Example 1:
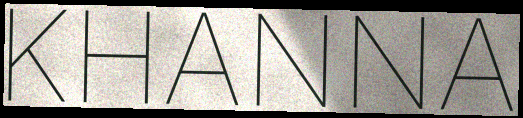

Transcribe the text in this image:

KHANNA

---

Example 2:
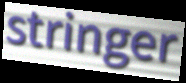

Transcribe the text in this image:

stringer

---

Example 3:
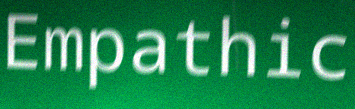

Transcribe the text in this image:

Empathic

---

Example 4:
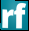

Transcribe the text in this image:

rf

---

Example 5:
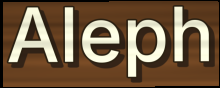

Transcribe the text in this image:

Aleph